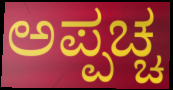
ಅಪ್ಪಚ್ಚ